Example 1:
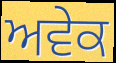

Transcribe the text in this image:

ਅਵੇਕ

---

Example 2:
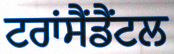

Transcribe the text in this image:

ਟਰਾਂਸੈਂਡੈਂਟਲ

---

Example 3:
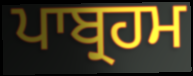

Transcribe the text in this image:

ਪਾਬ੍ਰਹਮ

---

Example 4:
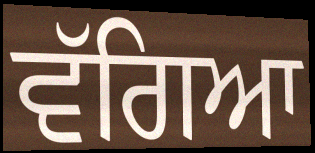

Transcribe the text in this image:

ਵੱਗਿਆ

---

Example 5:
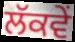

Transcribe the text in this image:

ਲੱਕਵੇਂ